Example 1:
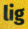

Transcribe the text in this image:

lig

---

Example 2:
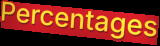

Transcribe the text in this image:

Percentages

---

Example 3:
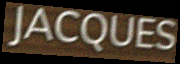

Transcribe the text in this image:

JACQUES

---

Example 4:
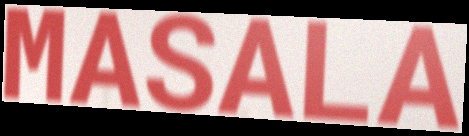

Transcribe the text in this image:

MASALA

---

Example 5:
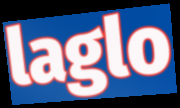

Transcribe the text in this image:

laglo